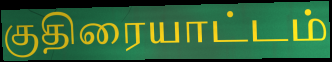
குதிரையாட்டம்